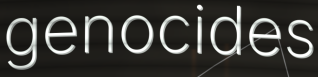
genocides